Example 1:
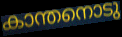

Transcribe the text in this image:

കാന്തനൊടു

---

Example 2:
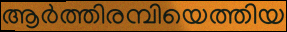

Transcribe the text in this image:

ആർത്തിരമ്പിയെത്തിയ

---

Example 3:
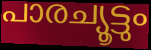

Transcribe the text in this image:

പാരച്യൂട്ടും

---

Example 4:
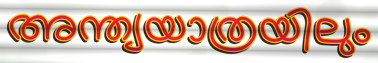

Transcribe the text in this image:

അന്ത്യയാത്രയിലും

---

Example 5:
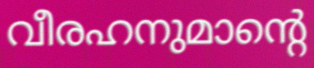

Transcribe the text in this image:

വീരഹനുമാന്റെ